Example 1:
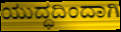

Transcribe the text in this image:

ಯುದ್ಧದಿಂದಾಗಿ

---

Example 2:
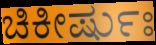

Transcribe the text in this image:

ಚಿಕೀರ್ಷುಃ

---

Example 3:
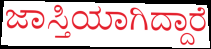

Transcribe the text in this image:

ಜಾಸ್ತಿಯಾಗಿದ್ದಾರೆ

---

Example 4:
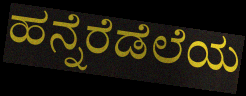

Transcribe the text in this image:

ಹನ್ನೆರೆಡೆಲೆಯ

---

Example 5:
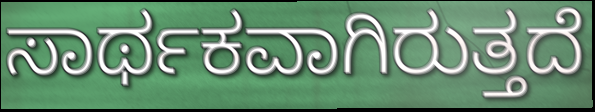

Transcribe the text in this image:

ಸಾರ್ಥಕವಾಗಿರುತ್ತದೆ